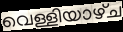
വെള്ളിയാഴ്‌ച